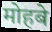
मोहबे